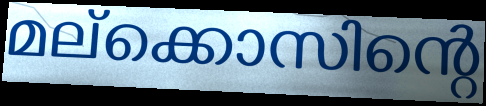
മല്ക്കൊസിന്റെ